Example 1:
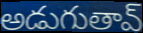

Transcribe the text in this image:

అడుగుతావ్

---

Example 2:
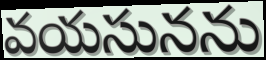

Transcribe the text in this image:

వయసునను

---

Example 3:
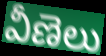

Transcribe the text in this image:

వీణెలు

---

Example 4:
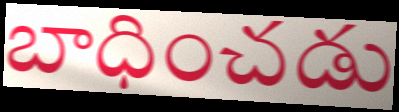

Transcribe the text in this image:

బాధించడు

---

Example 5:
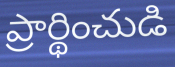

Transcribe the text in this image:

ప్రార్థించుడి